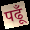
पढूँ